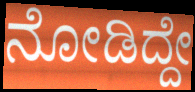
ನೋಡಿದ್ದೇ